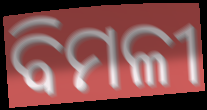
ବିମଳୀ